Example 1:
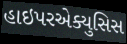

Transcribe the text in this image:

હાઇપરએક્યુસિસ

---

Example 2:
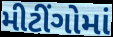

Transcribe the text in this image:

મીટીંગોમાં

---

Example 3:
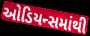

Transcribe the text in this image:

ઓડિયન્સમાંથી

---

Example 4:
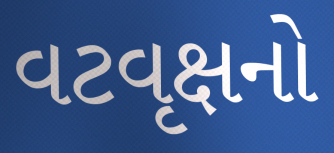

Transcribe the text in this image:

વટવૃક્ષનો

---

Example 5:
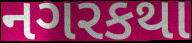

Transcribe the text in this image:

નગરકથા